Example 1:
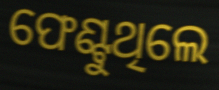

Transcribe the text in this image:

ଫେଣ୍ଟୁଥିଲେ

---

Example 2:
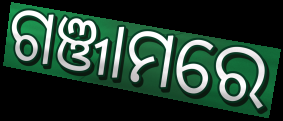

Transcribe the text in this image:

ଗଞ୍ଜାମରେ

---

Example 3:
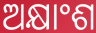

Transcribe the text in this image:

ଅକ୍ଷାଂଶ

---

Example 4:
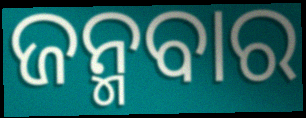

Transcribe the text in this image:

ଜନ୍ମବାର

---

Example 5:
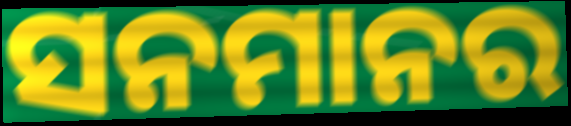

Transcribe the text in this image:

ସନମାନର